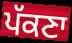
ਪੱਕਣਾ